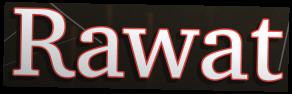
Rawat